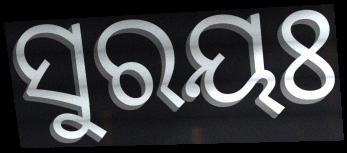
ସୁରୟଃ